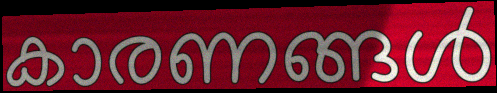
കാരണങ്ങൾ